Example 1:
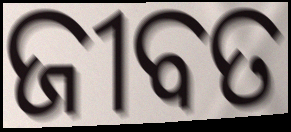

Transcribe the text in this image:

ଜୀବତ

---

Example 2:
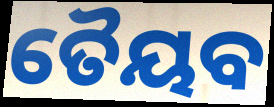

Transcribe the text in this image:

ତୈୟବ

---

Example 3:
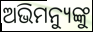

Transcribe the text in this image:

ଅଭିମନ୍ୟୁଙ୍କୁ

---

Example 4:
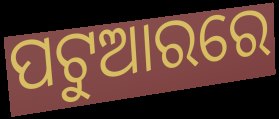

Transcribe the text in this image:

ପଟୁଆରରେ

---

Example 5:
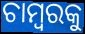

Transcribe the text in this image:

ଚାମ୍ବରକୁ